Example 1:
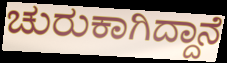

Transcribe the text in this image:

ಚುರುಕಾಗಿದ್ದಾನೆ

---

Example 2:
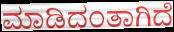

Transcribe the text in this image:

ಮಾಡಿದಂತಾಗಿದೆ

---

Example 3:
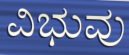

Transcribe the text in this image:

ವಿಭುವು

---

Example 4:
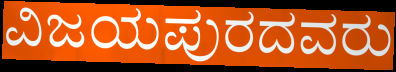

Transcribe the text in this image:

ವಿಜಯಪುರದವರು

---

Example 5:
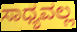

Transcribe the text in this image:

ಸಾಧ್ಯವಲ್ಲ